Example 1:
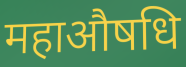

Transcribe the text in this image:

महाऔषधि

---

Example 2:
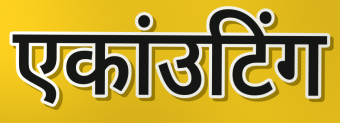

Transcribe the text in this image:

एकांउटिंग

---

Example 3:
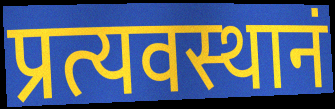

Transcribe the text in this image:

प्रत्यवस्थानं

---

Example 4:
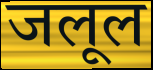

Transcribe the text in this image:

जलूल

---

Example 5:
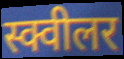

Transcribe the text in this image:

स्क्वीलर